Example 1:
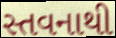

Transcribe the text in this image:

સ્તવનાથી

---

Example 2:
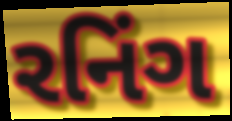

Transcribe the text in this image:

રનિંગ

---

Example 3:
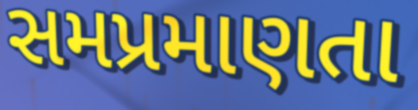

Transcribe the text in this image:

સમપ્રમાણતા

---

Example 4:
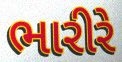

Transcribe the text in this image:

ભારીરે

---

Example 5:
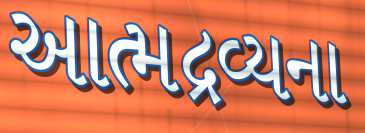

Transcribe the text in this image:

આત્મદ્રવ્યના